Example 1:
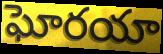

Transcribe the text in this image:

ఘోరయా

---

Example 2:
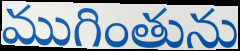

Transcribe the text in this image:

ముగింతును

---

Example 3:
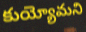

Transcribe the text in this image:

కుయ్యోమని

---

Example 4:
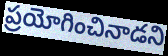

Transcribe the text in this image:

ప్రయోగించినాడని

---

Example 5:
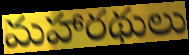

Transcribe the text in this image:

మహారథులు